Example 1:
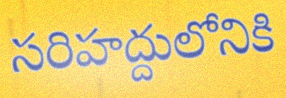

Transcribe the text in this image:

సరిహద్దులోనికి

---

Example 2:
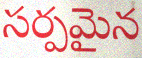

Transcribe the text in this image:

సర్పమైన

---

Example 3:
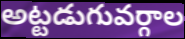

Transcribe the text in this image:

అట్టడుగువర్గాల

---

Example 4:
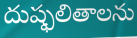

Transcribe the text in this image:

దుష్ఫలితాలను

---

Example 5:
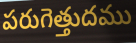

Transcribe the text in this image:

పరుగెత్తుదము